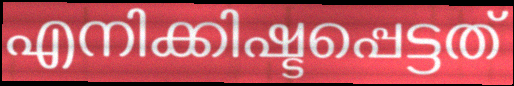
എനിക്കിഷ്ടപ്പെട്ടത്